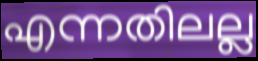
എന്നതിലല്ല